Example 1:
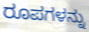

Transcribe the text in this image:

ರೂಪಗಳನ್ನು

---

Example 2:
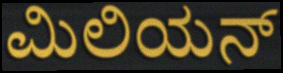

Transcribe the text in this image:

ಮಿಲಿಯನ್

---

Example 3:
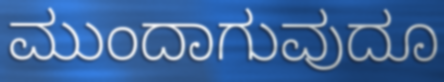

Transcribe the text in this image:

ಮುಂದಾಗುವುದೂ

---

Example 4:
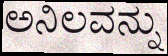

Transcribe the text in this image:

ಅನಿಲವನ್ನು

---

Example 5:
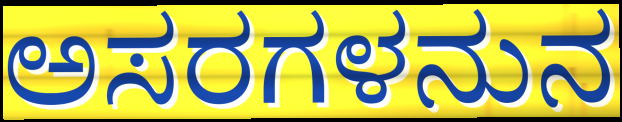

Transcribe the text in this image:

ಅಸರಗಳನುನ